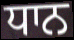
ਧਾਨ